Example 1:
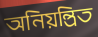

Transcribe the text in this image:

অনিয়ন্ত্রিত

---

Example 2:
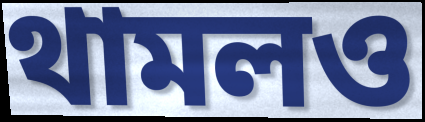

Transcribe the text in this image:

থামলও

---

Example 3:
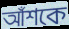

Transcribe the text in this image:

আঁশকে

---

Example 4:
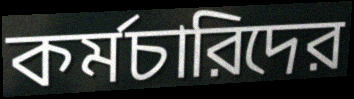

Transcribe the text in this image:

কর্মচারিদের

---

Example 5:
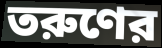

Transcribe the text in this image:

তরুণের